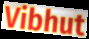
Vibhut